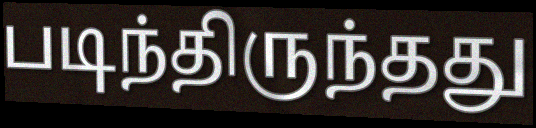
படிந்திருந்தது